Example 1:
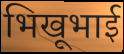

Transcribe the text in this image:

भिखूभाई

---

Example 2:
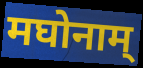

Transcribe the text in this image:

मघोनाम्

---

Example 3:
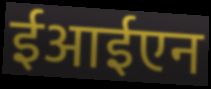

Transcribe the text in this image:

ईआईएन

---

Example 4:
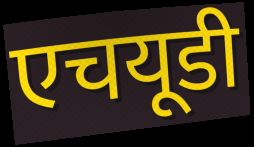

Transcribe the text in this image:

एचयूडी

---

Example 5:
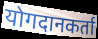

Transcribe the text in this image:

योगदानकर्ता